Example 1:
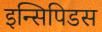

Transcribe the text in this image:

इन्सिपिडस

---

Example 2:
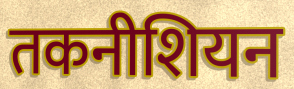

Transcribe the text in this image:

तकनीशियन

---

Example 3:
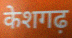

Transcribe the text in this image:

केशगढ़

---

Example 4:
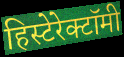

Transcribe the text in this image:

हिस्टेरेक्टॉमी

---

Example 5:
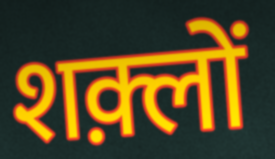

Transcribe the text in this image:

शक़्लों